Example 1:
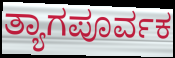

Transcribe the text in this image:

ತ್ಯಾಗಪೂರ್ವಕ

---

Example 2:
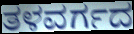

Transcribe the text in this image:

ತಳವರ್ಗದ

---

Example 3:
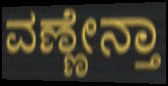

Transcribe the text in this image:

ವಣ್ಣೇನ್ತಾ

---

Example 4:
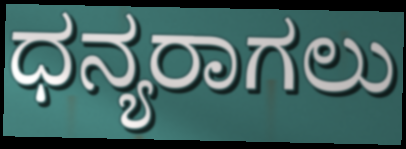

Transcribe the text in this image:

ಧನ್ಯರಾಗಲು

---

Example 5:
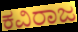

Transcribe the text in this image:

ಕವಿರಾಜ